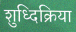
शुध्दिक्रिया